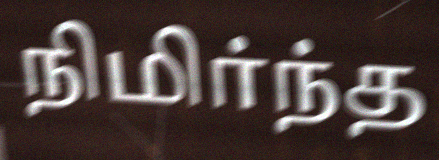
நிமிர்ந்த